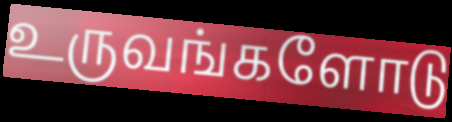
உருவங்களோடு